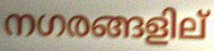
നഗരങ്ങളില്